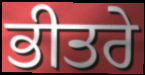
ਭੀਤਰੇ